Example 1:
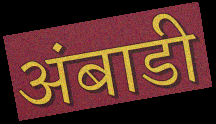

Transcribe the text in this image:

अंबाडी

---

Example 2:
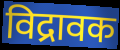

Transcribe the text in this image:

विद्रावक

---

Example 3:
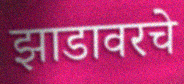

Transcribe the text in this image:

झाडावरचे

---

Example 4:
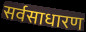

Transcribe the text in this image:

सर्वसाधारण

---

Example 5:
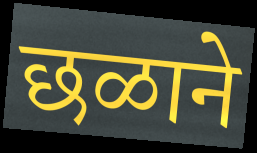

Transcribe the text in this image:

छळाने